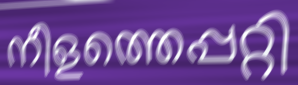
നീളത്തെപ്പറ്റി